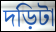
দড়িটা